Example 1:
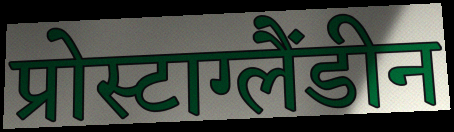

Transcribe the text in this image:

प्रोस्टाग्लैंडीन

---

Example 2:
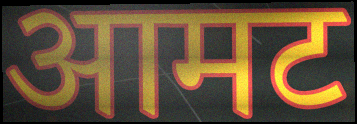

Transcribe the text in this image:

आमट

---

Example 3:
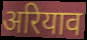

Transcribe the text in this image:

अरियाव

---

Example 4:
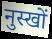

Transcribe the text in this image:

नुस्खों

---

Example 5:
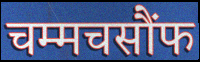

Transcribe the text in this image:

चम्मचसौंफ